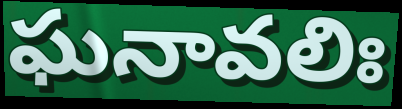
ఘనావలిః